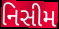
નિસીમ